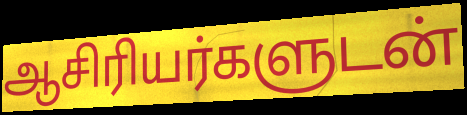
ஆசிரியர்களுடன்